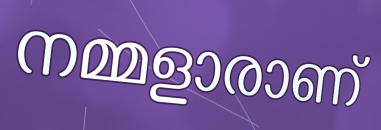
നമ്മളാരാണ്